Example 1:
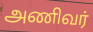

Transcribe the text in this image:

அணிவர்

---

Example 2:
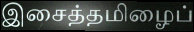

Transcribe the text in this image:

இசைத்தமிழைப்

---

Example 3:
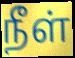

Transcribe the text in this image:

நீள்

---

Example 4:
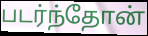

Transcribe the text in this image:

படர்ந்தோன்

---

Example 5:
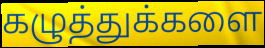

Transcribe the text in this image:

கழுத்துக்களை